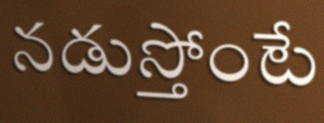
నడుస్తోంటే